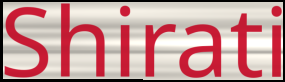
Shirati